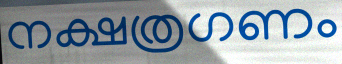
നക്ഷത്രഗണം